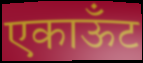
एकाऊँट